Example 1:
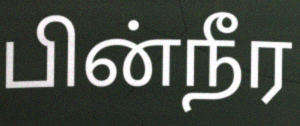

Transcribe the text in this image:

பின்நீர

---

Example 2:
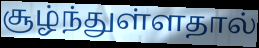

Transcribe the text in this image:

சூழ்ந்துள்ளதால்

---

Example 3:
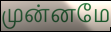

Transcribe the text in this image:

முன்னமே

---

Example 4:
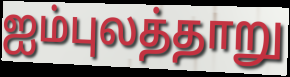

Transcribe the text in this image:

ஐம்புலத்தாறு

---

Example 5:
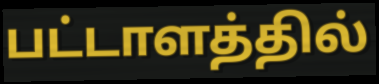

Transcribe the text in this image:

பட்டாளத்தில்